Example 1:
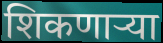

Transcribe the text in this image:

शिकणाऱ्या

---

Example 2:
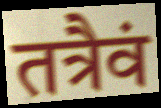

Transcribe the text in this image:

तत्रैवं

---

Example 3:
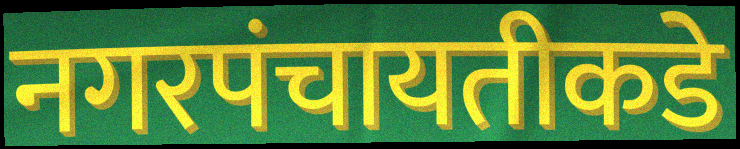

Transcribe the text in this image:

नगरपंचायतीकडे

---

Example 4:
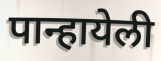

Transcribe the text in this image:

पान्हायेली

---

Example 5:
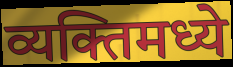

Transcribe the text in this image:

व्यक्तिमध्ये